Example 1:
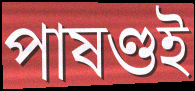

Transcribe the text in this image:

পাষণ্ডই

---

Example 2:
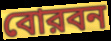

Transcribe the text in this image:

বোরবন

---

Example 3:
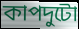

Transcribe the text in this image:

কাপদুটো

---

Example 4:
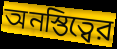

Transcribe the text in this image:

অনস্তিত্বের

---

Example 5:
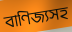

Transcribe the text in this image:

বাণিজ্যসহ